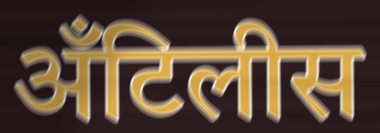
अँटिलीस